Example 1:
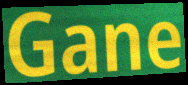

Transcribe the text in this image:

Gane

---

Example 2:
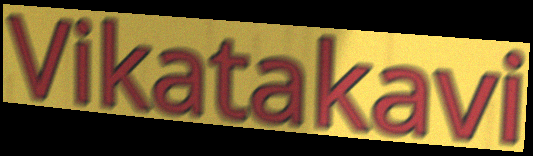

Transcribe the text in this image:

Vikatakavi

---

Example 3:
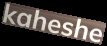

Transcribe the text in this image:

kaheshe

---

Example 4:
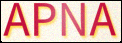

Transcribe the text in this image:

APNA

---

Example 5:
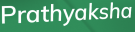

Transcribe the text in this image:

Prathyaksha